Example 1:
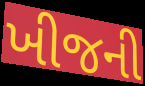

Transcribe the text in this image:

ખીજની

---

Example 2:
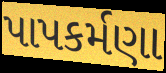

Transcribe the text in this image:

પાપકર્મણા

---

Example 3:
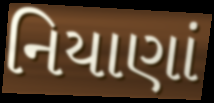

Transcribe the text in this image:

નિયાણાં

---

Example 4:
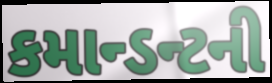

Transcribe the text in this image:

કમાન્ડન્ટની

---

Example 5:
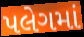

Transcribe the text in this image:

પલેગમાં